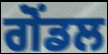
ਗੋਂਡਲ